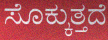
ಸೊಕ್ಕುತ್ತದೆ